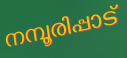
നമ്പൂരിപ്പാട്